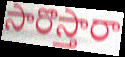
సారొస్తారా